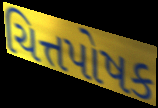
ચિત્તપોષક